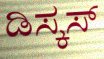
ಡಿಸ್ಕಸ್